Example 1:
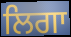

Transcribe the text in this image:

ਲਿਗਾ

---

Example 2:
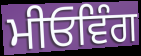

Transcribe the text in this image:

ਮੀਓਵਿੰਗ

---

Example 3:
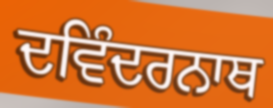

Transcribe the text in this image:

ਦਵਿੰਦਰਨਾਥ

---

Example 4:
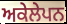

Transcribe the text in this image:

ਅਕੇਲੇਪਨ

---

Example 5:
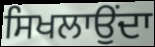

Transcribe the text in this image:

ਸਿਖਲਾਉਂਦਾ